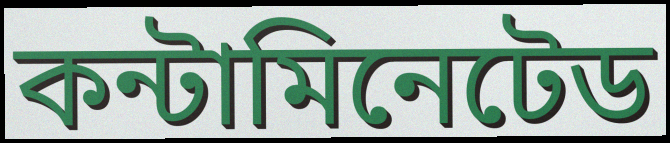
কন্টামিনেটেড